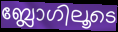
ബ്ലോഗിലൂടെ